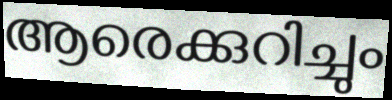
ആരെക്കുറിച്ചും